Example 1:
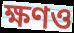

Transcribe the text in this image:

ক্ষণও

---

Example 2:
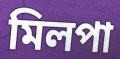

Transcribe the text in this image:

মিলপা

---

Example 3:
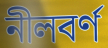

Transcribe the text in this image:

নীলবর্ণ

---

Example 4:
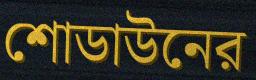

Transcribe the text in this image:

শোডাউনের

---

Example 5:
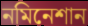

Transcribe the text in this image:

নমিনেশান